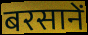
बरसानें